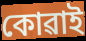
কোৱাই